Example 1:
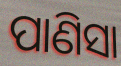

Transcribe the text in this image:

ପାଣିସା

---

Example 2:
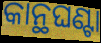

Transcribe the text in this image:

କାନ୍ଥଘଣ୍ଟା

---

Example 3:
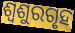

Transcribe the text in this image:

ଶ୍ୱଶୁରଗୃହ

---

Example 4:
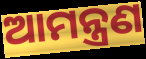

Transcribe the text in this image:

ଆମନ୍ତ୍ରଣ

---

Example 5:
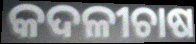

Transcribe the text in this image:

କଦଳୀଚାଷ